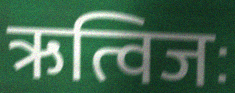
ऋत्विजः